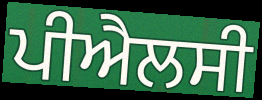
ਪੀਐਲਸੀ